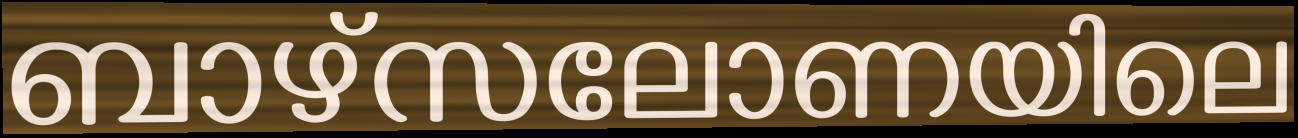
ബാഴ്സലോണയിലെ